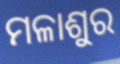
ମଳାଶୁର